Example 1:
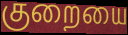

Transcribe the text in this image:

குறையை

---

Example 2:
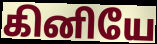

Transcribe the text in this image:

கினியே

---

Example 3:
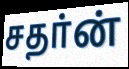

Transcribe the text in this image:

சதர்ன்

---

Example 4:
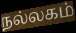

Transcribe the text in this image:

நல்லகம்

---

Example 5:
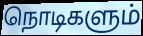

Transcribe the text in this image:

நொடிகளும்